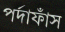
পর্দাফাঁস